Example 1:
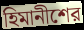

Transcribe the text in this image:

হিমানীশের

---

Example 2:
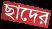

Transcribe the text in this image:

ছাদের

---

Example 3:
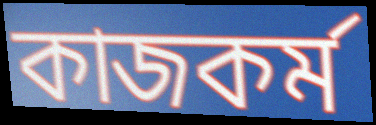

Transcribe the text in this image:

কাজকর্ম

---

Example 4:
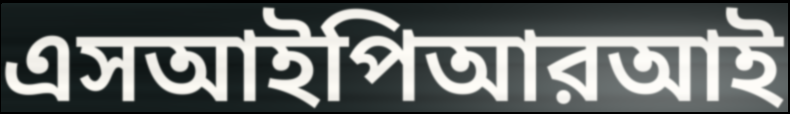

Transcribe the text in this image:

এসআইপিআরআই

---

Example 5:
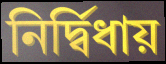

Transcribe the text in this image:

নির্দ্বিধায়